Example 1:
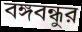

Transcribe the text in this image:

বঙ্গবন্ধুর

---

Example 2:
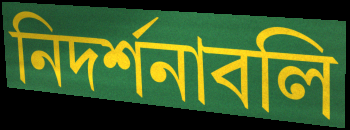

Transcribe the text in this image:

নিদর্শনাবলি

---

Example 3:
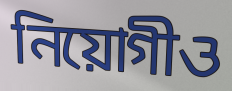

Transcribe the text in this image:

নিয়োগীও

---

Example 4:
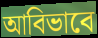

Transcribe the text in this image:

আবিভাবে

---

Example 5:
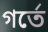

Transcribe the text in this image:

গর্তে